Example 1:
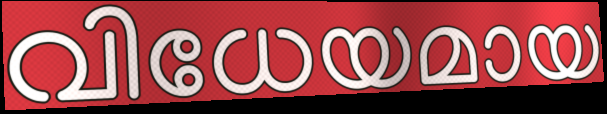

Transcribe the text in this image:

വിധേയമായ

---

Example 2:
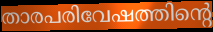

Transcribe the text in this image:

താരപരിവേഷത്തിന്റെ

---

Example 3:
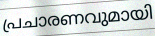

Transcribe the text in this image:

പ്രചാരണവുമായി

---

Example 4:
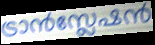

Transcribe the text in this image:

ട്രാൻസ്ലേഷൻ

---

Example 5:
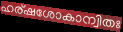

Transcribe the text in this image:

ഹര്ഷശോകാന്വിതഃ